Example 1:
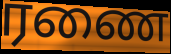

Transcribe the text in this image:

ரணை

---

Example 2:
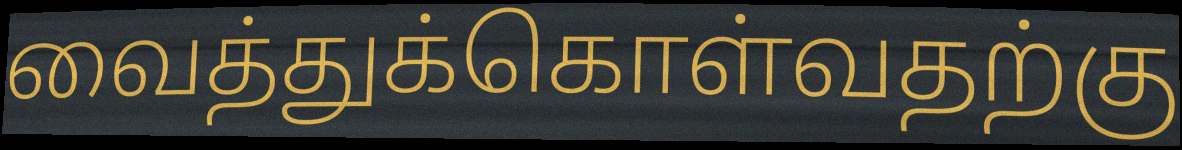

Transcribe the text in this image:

வைத்துக்கொள்வதற்கு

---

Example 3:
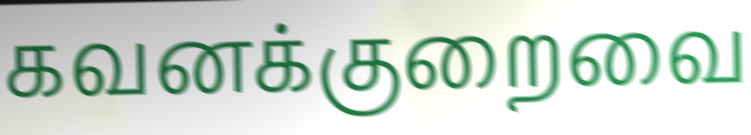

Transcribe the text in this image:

கவனக்குறைவை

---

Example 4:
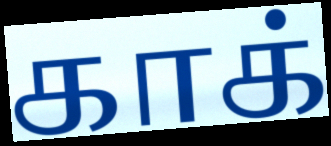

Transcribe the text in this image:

காக்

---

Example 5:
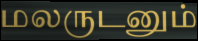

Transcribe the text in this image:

மலருடனும்